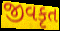
જીવકૃત